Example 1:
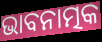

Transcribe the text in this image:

ଭାବନାତ୍ମକ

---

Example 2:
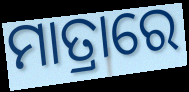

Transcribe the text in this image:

ମାତ୍ରାରେ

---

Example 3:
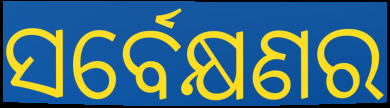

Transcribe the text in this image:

ସର୍ବେକ୍ଷଣର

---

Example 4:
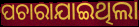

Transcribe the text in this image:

ପଚାରାଯାଇଥିଲା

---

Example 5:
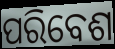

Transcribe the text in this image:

ପରିବେଶ